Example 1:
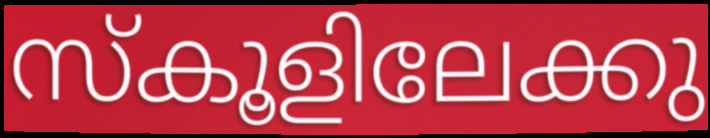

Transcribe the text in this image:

സ്കൂളിലേക്കു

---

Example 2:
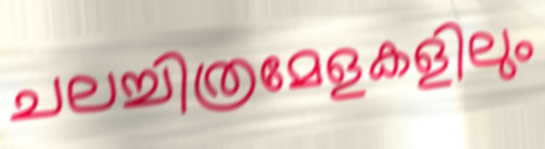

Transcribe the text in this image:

ചലച്ചിത്രമേളകളിലും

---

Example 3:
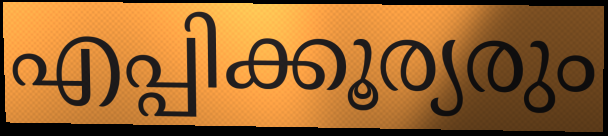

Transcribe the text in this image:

എപ്പിക്കൂര്യരും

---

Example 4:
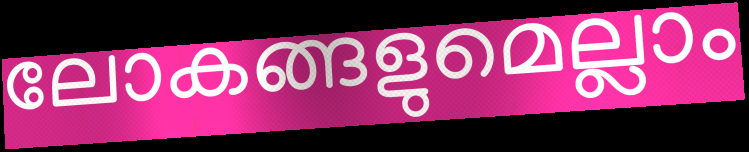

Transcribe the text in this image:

ലോകങ്ങളുമെല്ലാം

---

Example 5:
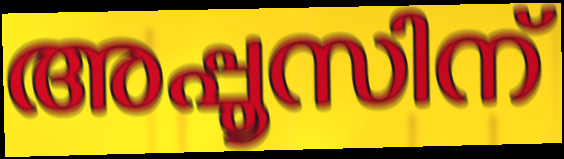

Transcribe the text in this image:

അപ്പൂസിന്